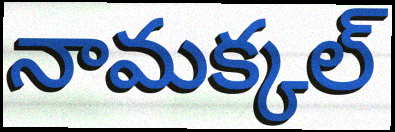
నామక్కల్